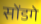
सोंडगे